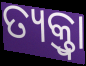
ତ୍ୟକ୍ତ୍ୱା